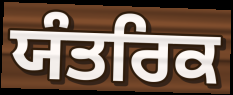
ਯੰਤਰਿਕ